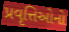
પ્રવૃત્તિઓનો